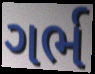
ગર્ભ